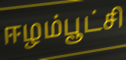
ஈழம்பூட்சி